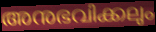
അനുഭവിക്കലും